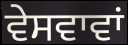
ਵੇਸਵਾਵਾਂ